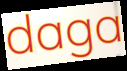
daga